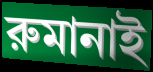
রুমানাই